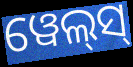
ୱେଲ୍‌ସ୍